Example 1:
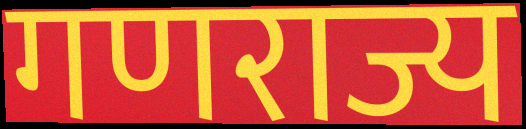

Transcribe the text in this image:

गणराज्य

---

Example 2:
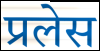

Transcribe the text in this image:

प्रलेस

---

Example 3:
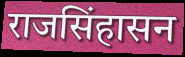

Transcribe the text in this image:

राजसिंहासन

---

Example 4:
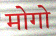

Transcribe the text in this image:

मोगो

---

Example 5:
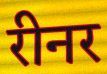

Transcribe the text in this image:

रीनर